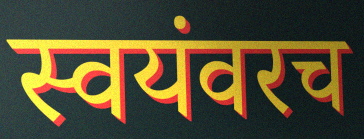
स्वयंवरच